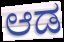
ಆಡ